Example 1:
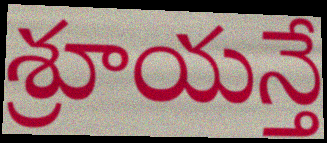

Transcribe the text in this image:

శ్రూయన్తే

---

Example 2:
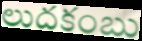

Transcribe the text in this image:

లుదకంబు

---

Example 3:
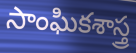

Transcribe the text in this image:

సాంఘికశాస్త్ర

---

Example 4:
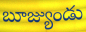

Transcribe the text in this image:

బూజ్యుండు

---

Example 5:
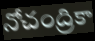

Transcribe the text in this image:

నోచంద్రికా